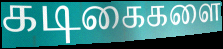
கடிகைகளை